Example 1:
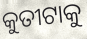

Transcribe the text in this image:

କୁତୀଟାକୁ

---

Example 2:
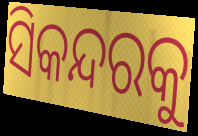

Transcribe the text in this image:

ସିକନ୍ଦରକୁ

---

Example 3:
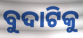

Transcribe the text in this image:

ବୁଦାଟିକୁ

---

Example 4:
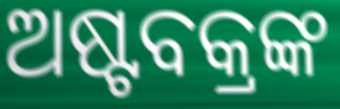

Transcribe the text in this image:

ଅଷ୍ଟବକ୍ରଙ୍କ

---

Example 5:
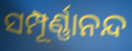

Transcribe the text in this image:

ସମ୍ପୂର୍ଣ୍ଣାନନ୍ଦ